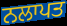
ਨਲਾਪਤ